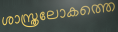
ശാസ്ത്രലോകത്തെ